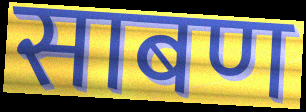
साबण